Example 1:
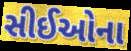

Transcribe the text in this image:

સીઈઓના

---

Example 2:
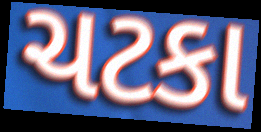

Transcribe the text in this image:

ચટકા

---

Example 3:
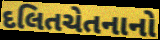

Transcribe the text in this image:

દલિતચેતનાનો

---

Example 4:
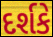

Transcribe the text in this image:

દર્શકે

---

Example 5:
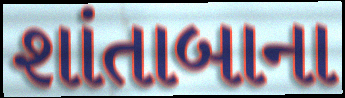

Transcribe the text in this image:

શાંતાબાના